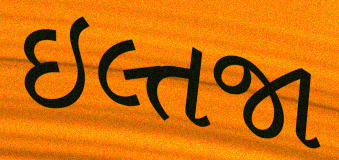
ઇલ્તજા